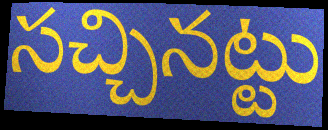
సచ్చినట్టు